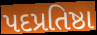
પદપ્રતિષ્ઠા